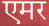
एमर